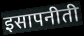
इसापनीती